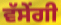
ਵੱਸੇਂਗੀ